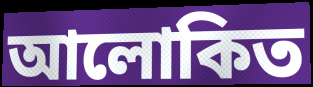
আলোকিত